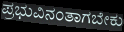
ಪ್ರಭುವಿನಂತಾಗಬೇಕು